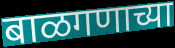
बाळगणाच्या